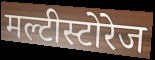
मल्टीस्टोरेज